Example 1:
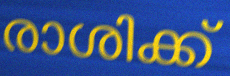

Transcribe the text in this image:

രാശിക്ക്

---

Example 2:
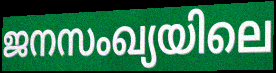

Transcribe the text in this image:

ജനസംഖ്യയിലെ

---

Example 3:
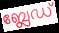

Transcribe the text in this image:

ബ്ലേഡ്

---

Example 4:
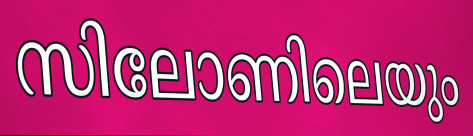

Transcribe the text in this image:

സിലോണിലെയും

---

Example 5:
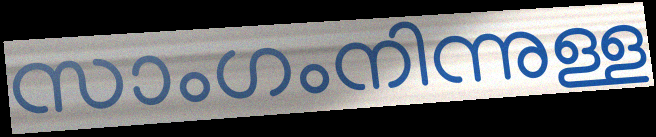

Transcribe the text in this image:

സാംഗംനിന്നുള്ള